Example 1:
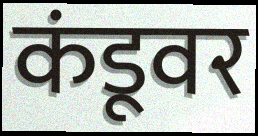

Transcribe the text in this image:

कंडूवर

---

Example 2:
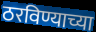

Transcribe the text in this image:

ठरविण्याच्या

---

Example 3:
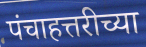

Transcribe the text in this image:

पंचाहत्तरीच्या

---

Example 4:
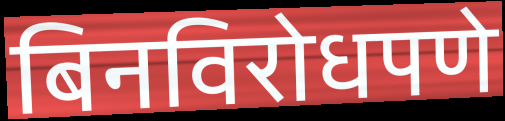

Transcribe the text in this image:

बिनविरोधपणे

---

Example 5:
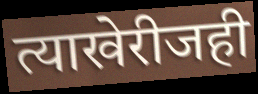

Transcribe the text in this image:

त्याखेरीजही